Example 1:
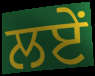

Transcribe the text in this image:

ਲਏਂ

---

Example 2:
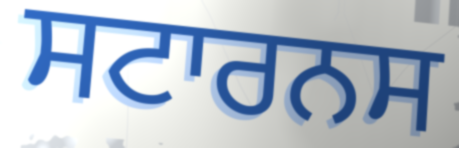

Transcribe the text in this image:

ਸਟਾਰਨਸ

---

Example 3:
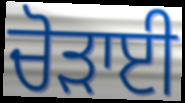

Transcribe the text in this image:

ਚੋੜਾਈ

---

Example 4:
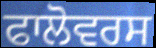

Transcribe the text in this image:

ਫਾਲੋਵਰਸ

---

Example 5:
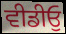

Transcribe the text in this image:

ਵੀਡੀਓੁ